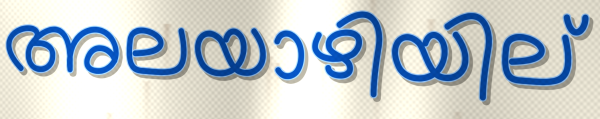
അലയാഴിയില്